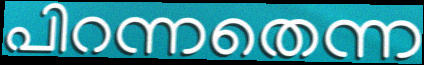
പിറന്നതെന്ന